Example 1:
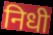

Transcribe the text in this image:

निधी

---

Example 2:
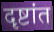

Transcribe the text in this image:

दृष्टांत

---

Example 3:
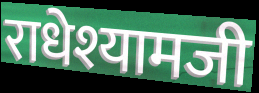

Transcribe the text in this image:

राधेश्यामजी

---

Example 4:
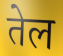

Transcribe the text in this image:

तेल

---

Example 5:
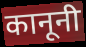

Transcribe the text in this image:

कानूनी